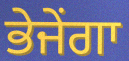
ਭੇਜੇਂਗਾ